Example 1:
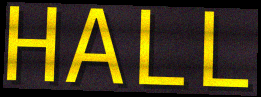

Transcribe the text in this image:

HALL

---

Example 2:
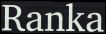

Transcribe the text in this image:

Ranka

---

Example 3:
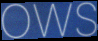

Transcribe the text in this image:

OWS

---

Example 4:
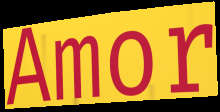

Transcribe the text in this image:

Amor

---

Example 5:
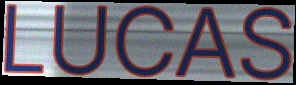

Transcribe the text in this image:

LUCAS